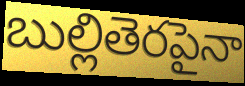
బుల్లితెరపైనా